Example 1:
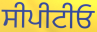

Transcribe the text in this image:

ਸੀਪੀਟੀਓ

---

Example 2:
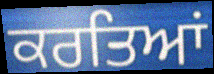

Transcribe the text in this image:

ਕਰਤਿਆਂ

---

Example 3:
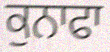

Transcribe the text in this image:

ਕੁਨਾਫਾ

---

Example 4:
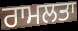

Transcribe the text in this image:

ਰਾਮਲਤਾ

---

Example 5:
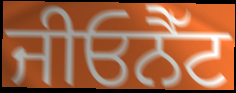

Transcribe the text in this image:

ਜੀਓਨੈੱਟ